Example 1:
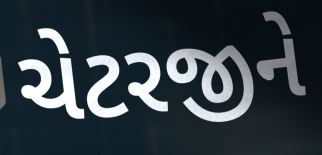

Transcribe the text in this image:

ચેટરજીને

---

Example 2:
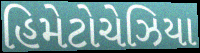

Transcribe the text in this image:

હિમેટોચેઝિયા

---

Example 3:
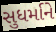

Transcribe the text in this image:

સુધર્માને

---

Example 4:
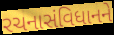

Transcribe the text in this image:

રચનાસંવિધાનને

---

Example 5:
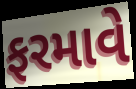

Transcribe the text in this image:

ફરમાવે